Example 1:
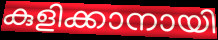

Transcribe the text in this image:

കുളിക്കാനായി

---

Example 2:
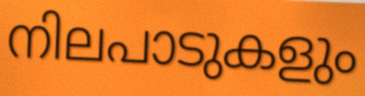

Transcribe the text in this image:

നിലപാടുകളും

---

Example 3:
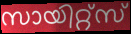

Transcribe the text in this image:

സായിറ്റ്സ്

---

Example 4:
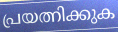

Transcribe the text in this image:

പ്രയത്നിക്കുക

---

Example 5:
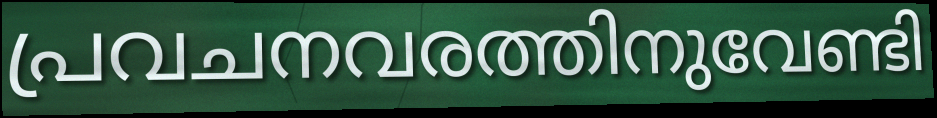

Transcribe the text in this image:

പ്രവചനവരത്തിനുവേണ്ടി